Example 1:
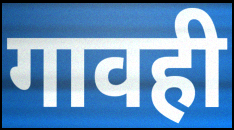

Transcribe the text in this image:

गावही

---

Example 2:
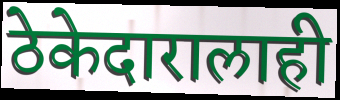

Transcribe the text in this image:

ठेकेदारालाही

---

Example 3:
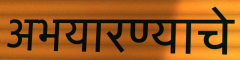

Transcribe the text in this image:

अभयारण्याचे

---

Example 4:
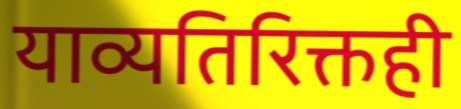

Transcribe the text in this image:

याव्यतिरिक्तही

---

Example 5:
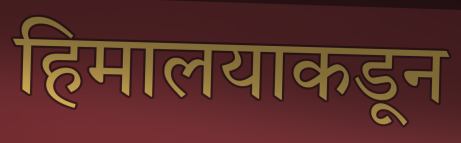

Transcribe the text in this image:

हिमालयाकडून